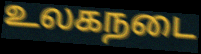
உலகநடை